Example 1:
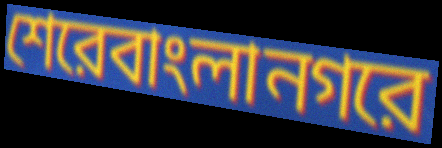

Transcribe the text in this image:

শেরেবাংলানগরে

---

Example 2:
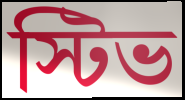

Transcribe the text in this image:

স্টিভ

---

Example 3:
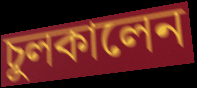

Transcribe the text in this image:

চুলকালেন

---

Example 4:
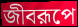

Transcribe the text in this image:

জীবরূপে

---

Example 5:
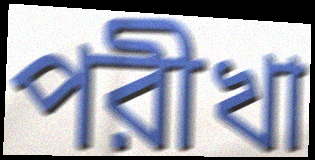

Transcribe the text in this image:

পরীখা